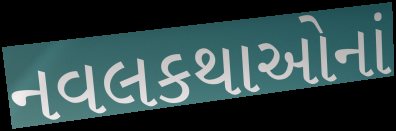
નવલકથાઓનાં